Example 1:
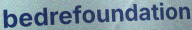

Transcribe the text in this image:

bedrefoundation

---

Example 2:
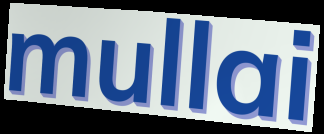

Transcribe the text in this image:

mullai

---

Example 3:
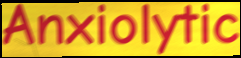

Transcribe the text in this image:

Anxiolytic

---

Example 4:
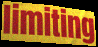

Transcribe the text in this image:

limiting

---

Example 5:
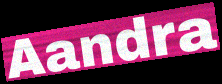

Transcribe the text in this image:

Aandra